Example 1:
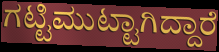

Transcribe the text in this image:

ಗಟ್ಟಿಮುಟ್ಟಾಗಿದ್ದಾರೆ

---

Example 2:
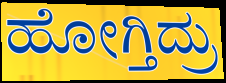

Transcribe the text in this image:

ಹೋಗ್ತಿದ್ರು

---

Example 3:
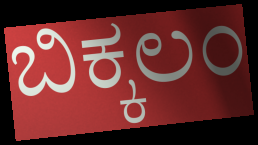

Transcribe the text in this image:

ಬಿಕ್ಕಲಂ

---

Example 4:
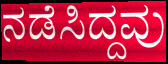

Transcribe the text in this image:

ನಡೆಸಿದ್ದವು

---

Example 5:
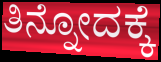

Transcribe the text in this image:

ತಿನ್ನೋದಕ್ಕೆ